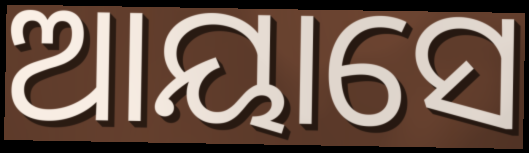
ଆୟାସେ